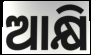
ଆକ୍ଷି